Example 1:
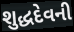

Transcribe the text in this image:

શુદ્ધદેવની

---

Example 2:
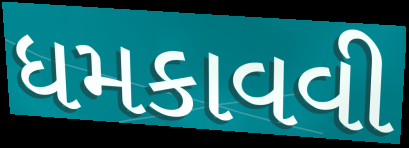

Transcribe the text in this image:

ધમકાવવી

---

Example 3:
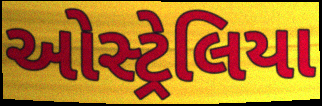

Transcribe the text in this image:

ઓસ્ટ્રેલિયા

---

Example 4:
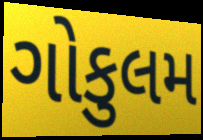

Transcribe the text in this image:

ગોકુલમ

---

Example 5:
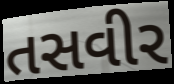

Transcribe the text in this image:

તસવીર